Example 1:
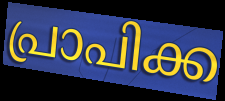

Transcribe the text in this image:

പ്രാപിക്ക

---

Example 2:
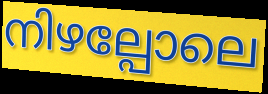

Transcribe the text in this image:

നിഴല്പോലെ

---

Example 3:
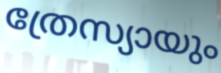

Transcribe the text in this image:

ത്രേസ്യായും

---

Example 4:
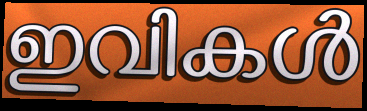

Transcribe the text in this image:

ഇവികൾ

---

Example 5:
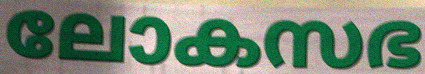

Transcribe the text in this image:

ലോകസഭ